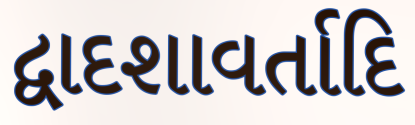
દ્વાદશાવર્તાદિ